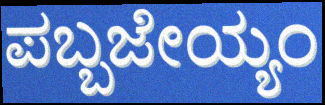
ಪಬ್ಬಜೇಯ್ಯಂ